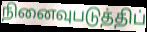
நினைவுபடுத்திப்